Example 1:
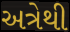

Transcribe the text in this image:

અત્રેથી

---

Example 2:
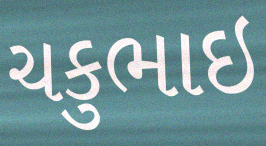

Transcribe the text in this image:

ચકુભાઇ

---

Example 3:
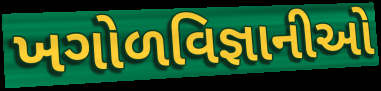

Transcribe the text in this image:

ખગોળવિજ્ઞાનીઓ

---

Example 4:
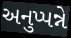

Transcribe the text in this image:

અનુપ્પન્ને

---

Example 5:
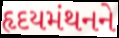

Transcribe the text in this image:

હૃદયમંથનને